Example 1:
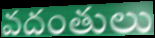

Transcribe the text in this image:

వదంతులు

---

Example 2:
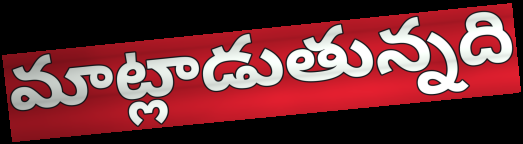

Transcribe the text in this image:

మాట్లాడుతున్నది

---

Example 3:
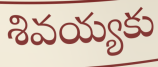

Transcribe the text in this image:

శివయ్యకు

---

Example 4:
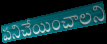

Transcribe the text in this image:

పనిచేయించాలని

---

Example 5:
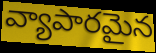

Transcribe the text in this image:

వ్యాపారమైన